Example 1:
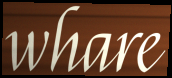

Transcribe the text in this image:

whare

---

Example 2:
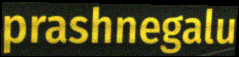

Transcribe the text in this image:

prashnegalu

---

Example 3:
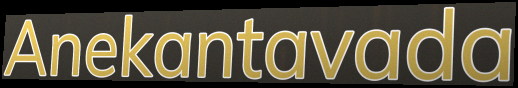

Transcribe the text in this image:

Anekantavada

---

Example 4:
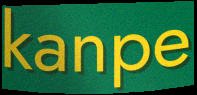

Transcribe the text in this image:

kanpe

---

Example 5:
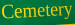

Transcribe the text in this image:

Cemetery